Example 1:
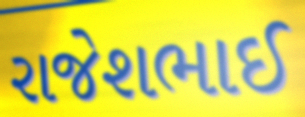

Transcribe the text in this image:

રાજેશભાઈ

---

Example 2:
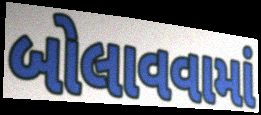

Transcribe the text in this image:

બોલાવવામાં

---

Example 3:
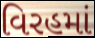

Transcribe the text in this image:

વિરહમાં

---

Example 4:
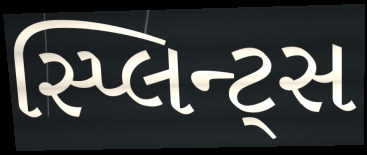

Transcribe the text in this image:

સ્પ્લિન્ટ્સ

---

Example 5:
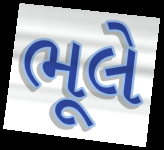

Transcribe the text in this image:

ભૂલે